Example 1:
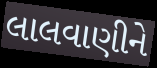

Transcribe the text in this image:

લાલવાણીને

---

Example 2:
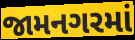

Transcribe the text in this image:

જામનગરમાં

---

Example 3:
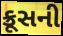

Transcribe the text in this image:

ક્રૂસની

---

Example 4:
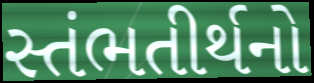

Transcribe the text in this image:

સ્તંભતીર્થનો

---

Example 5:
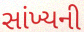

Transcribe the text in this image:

સાંખ્યની